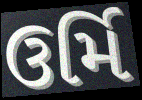
ઉર્મિ